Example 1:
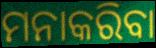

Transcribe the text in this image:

ମନାକରିବା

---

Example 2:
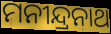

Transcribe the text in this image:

ମନୀନ୍ଦ୍ରନାଥ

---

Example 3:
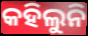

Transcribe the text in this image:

କହିଲୁନି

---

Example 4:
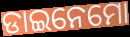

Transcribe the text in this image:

ଡାଇନେମୋ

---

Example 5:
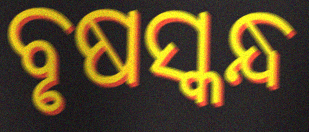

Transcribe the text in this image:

ବୃଷସ୍କନ୍ଧ